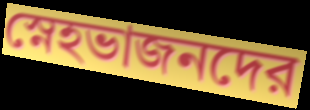
স্নেহভাজনদের